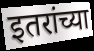
इतरांच्या